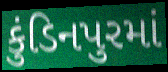
કુંડિનપુરમાં